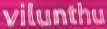
vilunthu